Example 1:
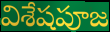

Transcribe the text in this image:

విశేషపూజ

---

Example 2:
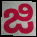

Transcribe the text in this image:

జి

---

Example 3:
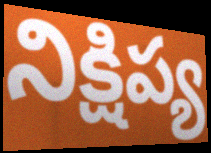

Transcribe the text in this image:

నిక్షిప్య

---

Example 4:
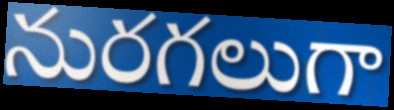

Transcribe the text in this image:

నురగలుగా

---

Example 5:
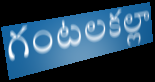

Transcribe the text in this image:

గంటలకల్లా